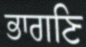
ਭਾਗਣਿ